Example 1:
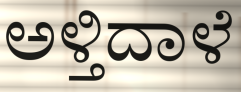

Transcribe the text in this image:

ಅಳ್ತಿದಾಳೆ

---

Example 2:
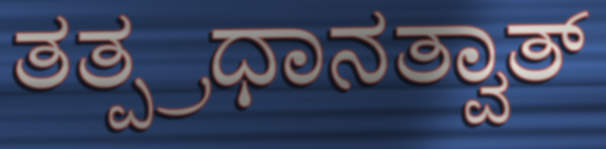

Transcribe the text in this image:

ತತ್ಪ್ರಧಾನತ್ವಾತ್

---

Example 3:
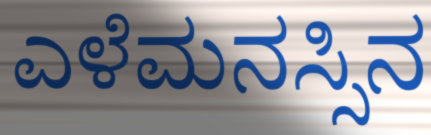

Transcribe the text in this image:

ಎಳೆಮನಸ್ಸಿನ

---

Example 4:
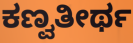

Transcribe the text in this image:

ಕಣ್ವತೀರ್ಥ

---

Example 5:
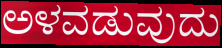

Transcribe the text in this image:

ಅಳವಡುವುದು